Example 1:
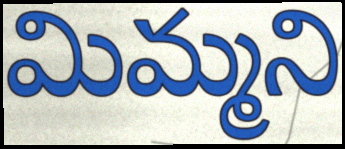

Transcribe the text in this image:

మిమ్మని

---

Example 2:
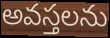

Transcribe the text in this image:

అవస్తలను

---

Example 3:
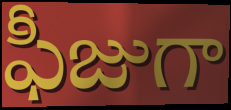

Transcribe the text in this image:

ఫీజుగా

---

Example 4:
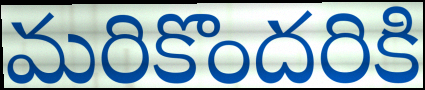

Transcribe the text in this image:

మరికొందరికి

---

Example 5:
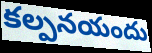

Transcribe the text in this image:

కల్పనయందు